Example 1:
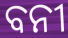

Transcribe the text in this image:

ବନୀ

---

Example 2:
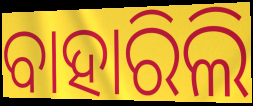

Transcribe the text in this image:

ବାହାରିଲି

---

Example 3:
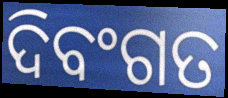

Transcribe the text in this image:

ଦିବଂଗତ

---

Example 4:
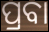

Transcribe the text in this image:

ପ୍ରବା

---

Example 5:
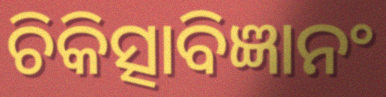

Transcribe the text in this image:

ଚିକିତ୍ସାବିଜ୍ଞାନଂ